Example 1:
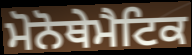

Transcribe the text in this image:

ਮੋਨੋਥੇਮੈਟਿਕ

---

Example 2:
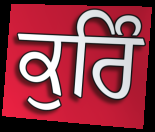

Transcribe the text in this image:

ਕੁਰਿੰ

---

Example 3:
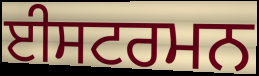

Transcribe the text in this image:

ਈਸਟਰਮਨ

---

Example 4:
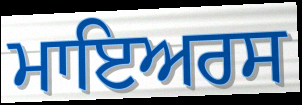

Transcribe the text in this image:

ਮਾਇਅਰਸ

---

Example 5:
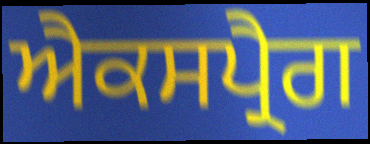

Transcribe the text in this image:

ਐਕਸਪ੍ਰੈਗ